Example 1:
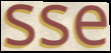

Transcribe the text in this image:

sse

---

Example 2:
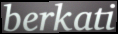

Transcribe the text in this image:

berkati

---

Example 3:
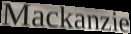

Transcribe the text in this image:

Mackanzie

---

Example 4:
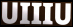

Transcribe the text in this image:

UIIIU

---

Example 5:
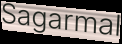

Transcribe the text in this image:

Sagarmal